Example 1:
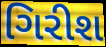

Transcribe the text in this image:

ગિરીશ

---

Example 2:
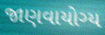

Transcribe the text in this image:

જાણવાયોગ્ય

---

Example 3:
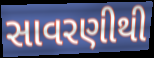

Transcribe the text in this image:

સાવરણીથી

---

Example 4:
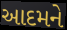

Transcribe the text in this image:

આદમને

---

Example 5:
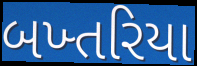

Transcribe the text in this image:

બખ્તરિયા